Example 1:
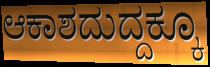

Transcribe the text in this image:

ಆಕಾಶದುದ್ದಕ್ಕೂ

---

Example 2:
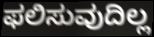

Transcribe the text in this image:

ಫಲಿಸುವುದಿಲ್ಲ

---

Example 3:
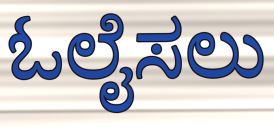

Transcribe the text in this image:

ಓಲೈಸಲು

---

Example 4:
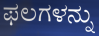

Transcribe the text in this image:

ಫಲಗಳನ್ನು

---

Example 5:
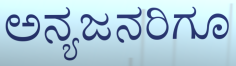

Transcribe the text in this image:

ಅನ್ಯಜನರಿಗೂ